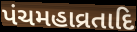
પંચમહાવ્રતાદિ